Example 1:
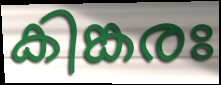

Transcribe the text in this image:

കിങ്കരഃ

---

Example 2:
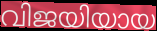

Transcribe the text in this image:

വിജയിയായ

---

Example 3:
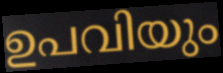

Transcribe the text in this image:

ഉപവിയും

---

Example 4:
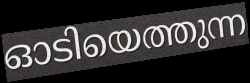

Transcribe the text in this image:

ഓടിയെത്തുന്ന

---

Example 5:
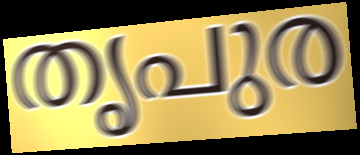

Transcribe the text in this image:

തൃപുര